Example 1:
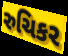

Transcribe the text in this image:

રુચિકર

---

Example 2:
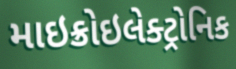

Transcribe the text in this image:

માઇક્રોઇલેક્ટ્રોનિક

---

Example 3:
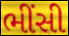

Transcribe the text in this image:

ભીંસી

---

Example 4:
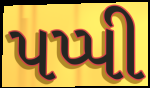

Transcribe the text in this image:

પપ્પી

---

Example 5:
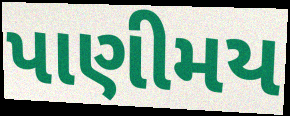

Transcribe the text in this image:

પાણીમય